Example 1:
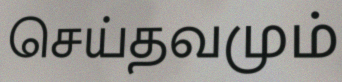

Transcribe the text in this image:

செய்தவமும்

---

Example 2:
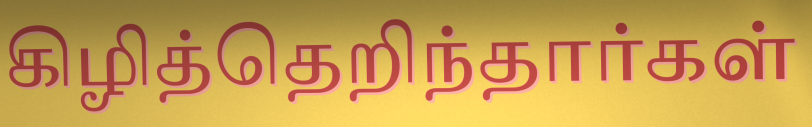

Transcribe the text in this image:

கிழித்தெறிந்தார்கள்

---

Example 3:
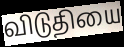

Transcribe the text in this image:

விடுதியை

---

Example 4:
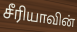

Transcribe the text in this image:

சீரியாவின்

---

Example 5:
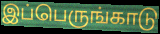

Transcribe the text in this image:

இப்பெருங்காடு